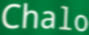
Chalo